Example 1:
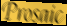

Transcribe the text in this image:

Prosaic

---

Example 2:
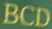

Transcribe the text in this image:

BCD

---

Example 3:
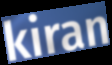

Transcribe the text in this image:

kiran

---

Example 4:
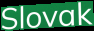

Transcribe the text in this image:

Slovak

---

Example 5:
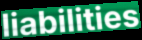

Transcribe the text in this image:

liabilities